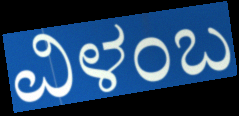
ವಿಳಂಬ